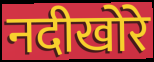
नदीखोरे